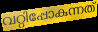
വറ്റിപ്പോകുന്നത്